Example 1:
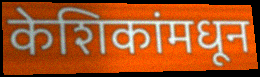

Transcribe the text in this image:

केशिकांमधून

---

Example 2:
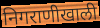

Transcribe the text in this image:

निगराणीखाली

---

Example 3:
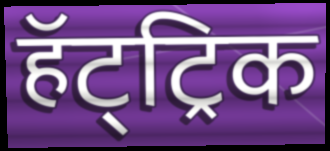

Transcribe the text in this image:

हॅट्ट्रिक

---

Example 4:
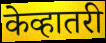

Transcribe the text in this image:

केव्हातरी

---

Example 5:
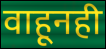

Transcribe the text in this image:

वाहूनही